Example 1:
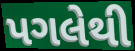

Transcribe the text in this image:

પગલેથી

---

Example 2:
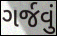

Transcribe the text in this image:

ગર્જવું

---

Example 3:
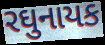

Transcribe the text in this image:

રઘુનાયક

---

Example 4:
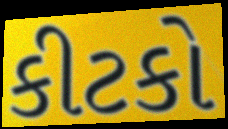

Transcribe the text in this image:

કીટકો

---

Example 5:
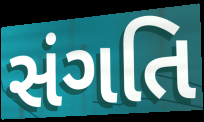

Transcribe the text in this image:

સંગતિ